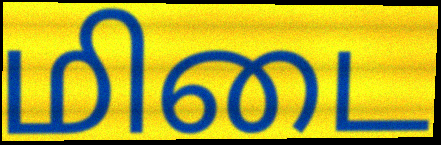
மிடை